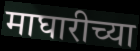
माघारीच्या